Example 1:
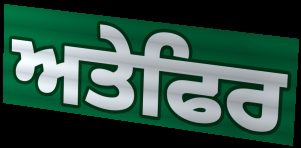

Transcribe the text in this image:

ਅਤੇਫਿਰ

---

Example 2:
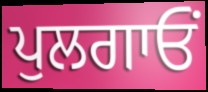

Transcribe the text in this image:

ਪੁਲਗਾਓਂ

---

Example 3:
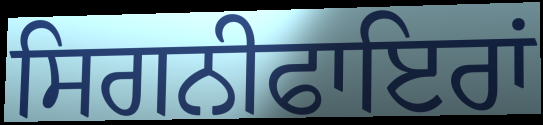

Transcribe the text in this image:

ਸਿਗਨੀਫਾਇਰਾਂ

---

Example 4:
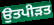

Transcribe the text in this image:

ਉਤਪੀੜਤ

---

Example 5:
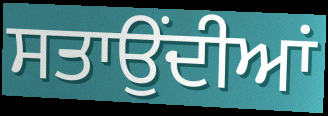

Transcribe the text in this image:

ਸਤਾਉਂਦੀਆਂ